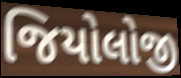
જિયોલોજી